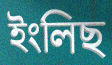
ইংলিছ